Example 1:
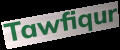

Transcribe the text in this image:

Tawfiqur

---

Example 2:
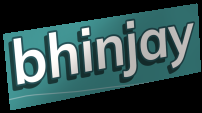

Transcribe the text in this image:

bhinjay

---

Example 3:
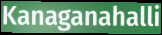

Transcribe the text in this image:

Kanaganahalli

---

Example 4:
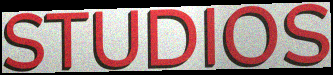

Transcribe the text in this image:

STUDIOS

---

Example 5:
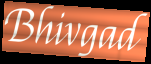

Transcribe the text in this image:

Bhivgad